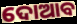
ଦୋଆବ